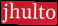
jhulto